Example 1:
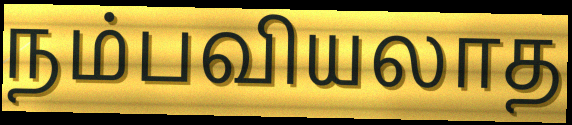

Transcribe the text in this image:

நம்பவியலாத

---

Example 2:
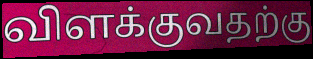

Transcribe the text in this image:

விளக்குவதற்கு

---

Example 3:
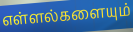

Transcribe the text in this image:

எள்ளல்களையும்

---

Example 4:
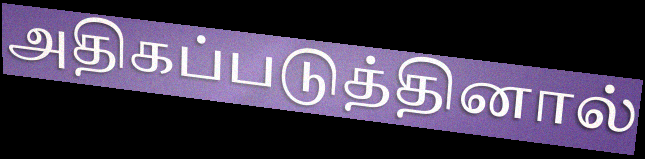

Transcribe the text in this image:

அதிகப்படுத்தினால்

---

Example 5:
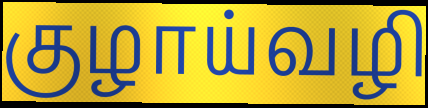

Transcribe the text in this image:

குழாய்வழி